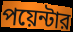
পয়েন্টার